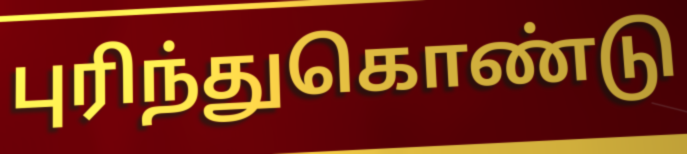
புரிந்துகொண்டு